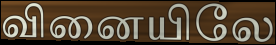
வினையிலே